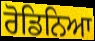
ਰੋਡਿਨਿਆ